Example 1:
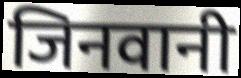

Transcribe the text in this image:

जिनवानी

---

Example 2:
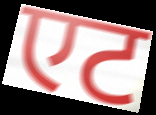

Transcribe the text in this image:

एट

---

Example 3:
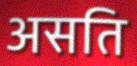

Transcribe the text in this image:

असति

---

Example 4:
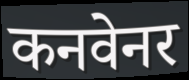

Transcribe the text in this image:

कनवेनर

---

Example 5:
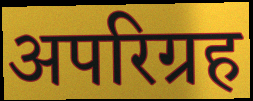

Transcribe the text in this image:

अपरिग्रह